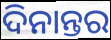
ଦିନାନ୍ତର